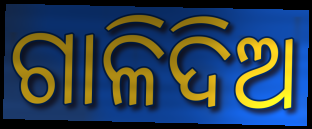
ଗାଳିଦିଅ